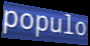
populo